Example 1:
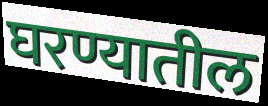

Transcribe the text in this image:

घरण्यातील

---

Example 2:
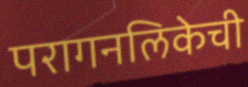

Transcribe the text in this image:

परागनलिकेची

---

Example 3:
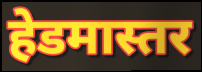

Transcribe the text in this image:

हेडमास्तर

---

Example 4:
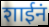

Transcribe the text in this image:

शाईनं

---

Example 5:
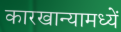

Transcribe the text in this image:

कारखान्यामध्यें